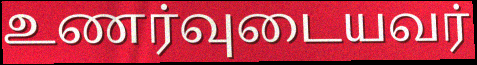
உணர்வுடையவர்